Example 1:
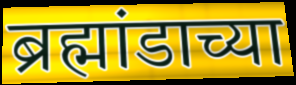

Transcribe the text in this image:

ब्रह्मांडाच्या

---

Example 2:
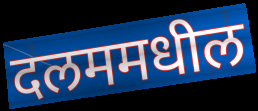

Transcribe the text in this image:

दलममधील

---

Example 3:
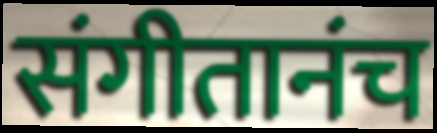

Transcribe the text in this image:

संगीतानंच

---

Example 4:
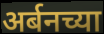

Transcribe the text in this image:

अर्बनच्या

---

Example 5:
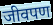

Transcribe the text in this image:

जीवपण